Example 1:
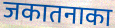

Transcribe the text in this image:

जकातनाका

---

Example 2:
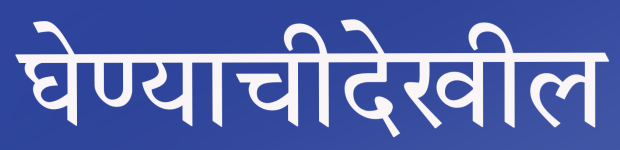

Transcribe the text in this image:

घेण्याचीदेखील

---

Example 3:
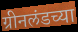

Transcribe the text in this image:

ग्रीनलंडच्या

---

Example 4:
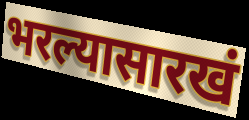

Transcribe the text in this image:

भरल्यासारखं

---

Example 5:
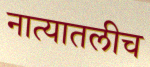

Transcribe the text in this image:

नात्यातलीच